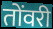
तोंवरी